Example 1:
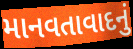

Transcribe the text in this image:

માનવતાવાદનું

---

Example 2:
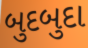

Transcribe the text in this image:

બુદબુદા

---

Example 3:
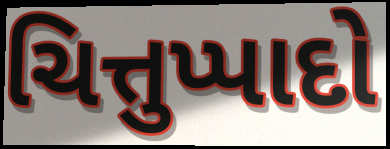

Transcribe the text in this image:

ચિત્તુપ્પાદો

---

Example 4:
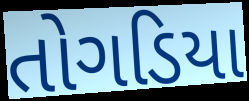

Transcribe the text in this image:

તોગડિયા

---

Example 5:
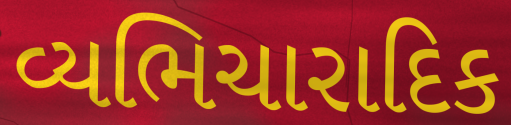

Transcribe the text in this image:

વ્યભિચારાદિક